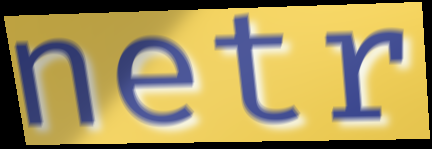
netr